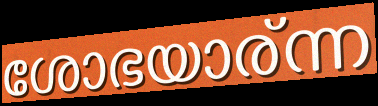
ശോഭയാര്ന്ന